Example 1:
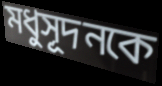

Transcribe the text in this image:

মধুসূদনকে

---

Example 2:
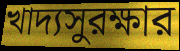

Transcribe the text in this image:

খাদ্যসুরক্ষার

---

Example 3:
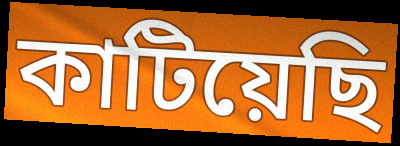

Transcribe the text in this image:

কাটিয়েছি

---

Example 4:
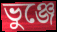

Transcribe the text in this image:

ভুঞ্জে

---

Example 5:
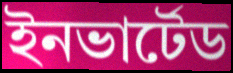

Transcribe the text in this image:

ইনভার্টেড